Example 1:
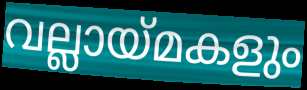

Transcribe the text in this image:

വല്ലായ്മകളും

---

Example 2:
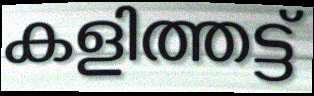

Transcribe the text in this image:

കളിത്തട്ട്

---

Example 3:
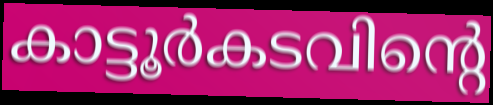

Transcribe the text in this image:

കാട്ടൂർകടവിന്റെ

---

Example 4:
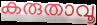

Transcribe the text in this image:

കരുതാവൂ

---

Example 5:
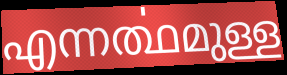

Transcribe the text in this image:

എന്നൎത്ഥമുള്ള